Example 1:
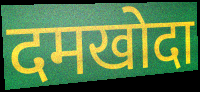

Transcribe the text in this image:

दमखोदा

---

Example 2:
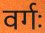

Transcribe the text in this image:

वर्गः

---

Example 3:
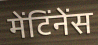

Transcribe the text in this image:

मेंटिंनेंस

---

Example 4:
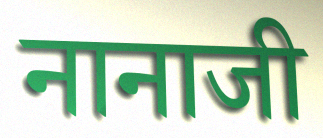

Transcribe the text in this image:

नानाजी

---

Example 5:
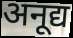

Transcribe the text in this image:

अनूद्य